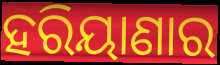
ହରିୟାଣାର